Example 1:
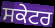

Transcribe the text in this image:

ਸਕੇਟਰ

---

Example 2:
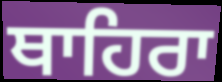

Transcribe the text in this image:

ਥਾਹਿਰਾ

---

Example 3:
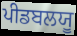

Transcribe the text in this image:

ਪੀਡਬਲਯੂ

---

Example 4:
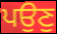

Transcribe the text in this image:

ਪਉਣੁ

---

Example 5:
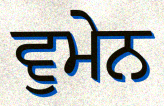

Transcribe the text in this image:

ਵੁਮੇਨ